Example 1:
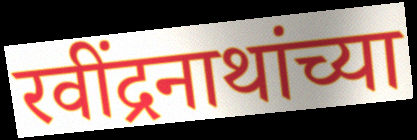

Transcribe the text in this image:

रवींद्रनाथांच्या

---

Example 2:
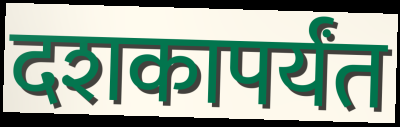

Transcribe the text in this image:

दशकापर्यंत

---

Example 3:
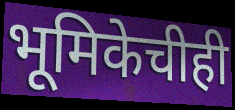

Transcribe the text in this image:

भूमिकेचीही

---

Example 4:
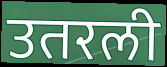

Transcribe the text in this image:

उतरली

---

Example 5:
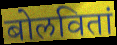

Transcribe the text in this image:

बोलवितां